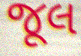
જૂલ